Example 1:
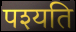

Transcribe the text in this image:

पश्यति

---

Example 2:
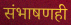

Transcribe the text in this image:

संभाषणही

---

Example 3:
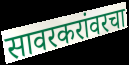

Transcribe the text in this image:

सावरकरांवरचा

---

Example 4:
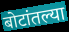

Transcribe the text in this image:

बोटांतल्या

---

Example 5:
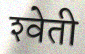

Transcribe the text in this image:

श्वेती